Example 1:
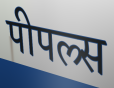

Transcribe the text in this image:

पीपल्स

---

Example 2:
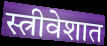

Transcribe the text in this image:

स्त्रीवेशात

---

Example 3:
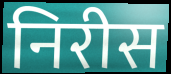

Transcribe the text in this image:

निरीस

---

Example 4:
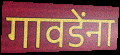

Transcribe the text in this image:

गावडेंना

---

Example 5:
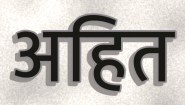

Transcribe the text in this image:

अहित